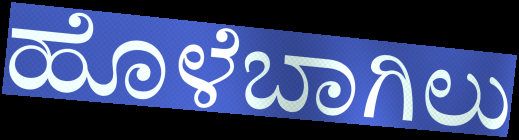
ಹೊಳೆಬಾಗಿಲು